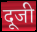
दूजी